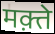
मक़्ते